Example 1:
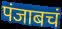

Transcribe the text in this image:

पंजाबचं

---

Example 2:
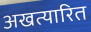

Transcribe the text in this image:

अखत्यारित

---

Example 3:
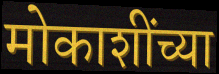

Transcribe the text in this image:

मोकाशींच्या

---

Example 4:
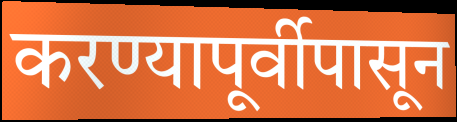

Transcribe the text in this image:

करण्यापूर्वीपासून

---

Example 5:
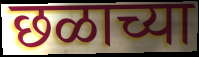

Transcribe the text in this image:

छळाच्या